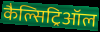
कैल्सिट्रिऑल